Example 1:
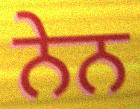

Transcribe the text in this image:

ਨੇਨ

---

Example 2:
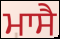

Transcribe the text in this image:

ਮਾਸੈ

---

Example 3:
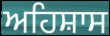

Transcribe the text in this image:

ਅਹਿਸ਼ਾਸ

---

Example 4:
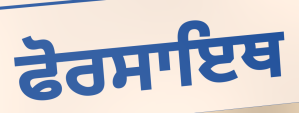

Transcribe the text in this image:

ਫੋਰਸਾਇਥ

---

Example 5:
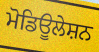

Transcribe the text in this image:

ਮੋਡਿਊਲੇਸ਼ਨ